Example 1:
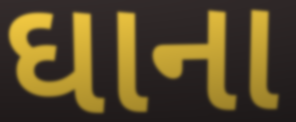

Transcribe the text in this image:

ઘાના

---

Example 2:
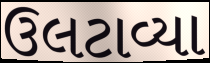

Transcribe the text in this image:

ઉલટાવ્યા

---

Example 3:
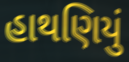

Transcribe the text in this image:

હાથણિયું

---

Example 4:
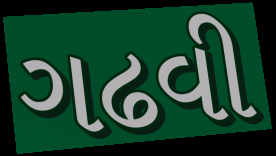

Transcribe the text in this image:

ગઢવી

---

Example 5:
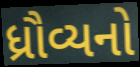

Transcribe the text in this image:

ધ્રૌવ્યનો